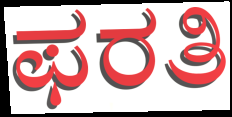
ಫರತಿ